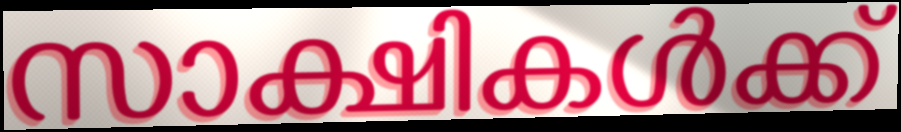
സാക്ഷികൾക്ക്